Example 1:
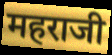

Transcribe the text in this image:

महराजी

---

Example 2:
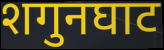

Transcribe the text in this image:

शगुनघाट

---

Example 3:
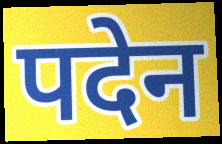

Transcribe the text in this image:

पदेन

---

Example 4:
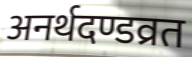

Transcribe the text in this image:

अनर्थदण्डव्रत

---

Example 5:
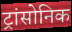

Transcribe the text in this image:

ट्रांसोनिक